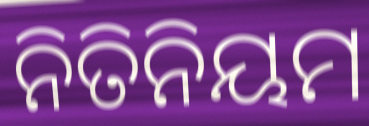
ନିତିନିୟମ